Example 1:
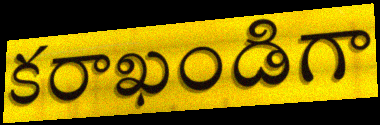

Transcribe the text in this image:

కరాఖండిగా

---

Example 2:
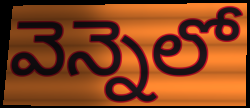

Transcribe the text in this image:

వెన్నెలో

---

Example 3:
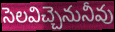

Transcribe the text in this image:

సెలవిచ్చెనునీవు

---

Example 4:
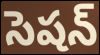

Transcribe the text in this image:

సెషన్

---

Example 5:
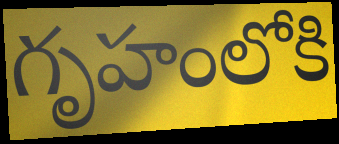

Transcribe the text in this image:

గృహంలోకి